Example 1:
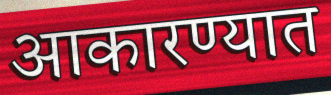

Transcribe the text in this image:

आकारण्यात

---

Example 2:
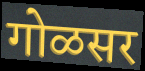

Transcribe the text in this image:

गोळसर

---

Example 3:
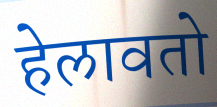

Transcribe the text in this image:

हेलावतो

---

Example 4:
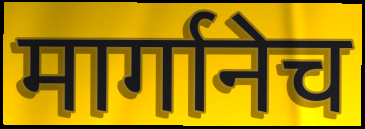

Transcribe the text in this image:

मार्गानेच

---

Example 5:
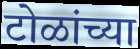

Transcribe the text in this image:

टोळांच्या